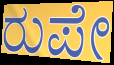
ರುಪೇ